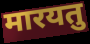
मारयतु